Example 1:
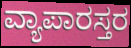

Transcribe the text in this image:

ವ್ಯಾಪಾರಸ್ತರ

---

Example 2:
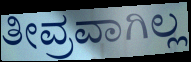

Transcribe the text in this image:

ತೀವ್ರವಾಗಿಲ್ಲ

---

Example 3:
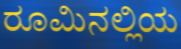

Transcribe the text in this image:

ರೂಮಿನಲ್ಲಿಯ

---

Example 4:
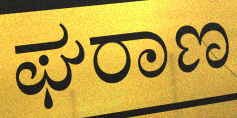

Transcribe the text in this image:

ಘರಾಣ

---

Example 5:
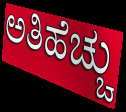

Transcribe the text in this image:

ಅತಿಹೆಚ್ಚು